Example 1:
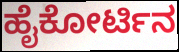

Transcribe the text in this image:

ಹೈಕೋರ್ಟಿನ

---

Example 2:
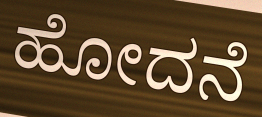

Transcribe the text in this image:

ಹೋದನೆ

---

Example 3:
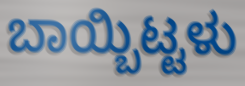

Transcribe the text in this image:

ಬಾಯ್ಬಿಟ್ಟಳು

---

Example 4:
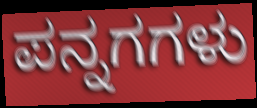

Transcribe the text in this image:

ಪನ್ನಗಗಳು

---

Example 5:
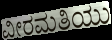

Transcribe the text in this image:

ವೀರಮತಿಯು